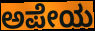
ಅಪೇಯ